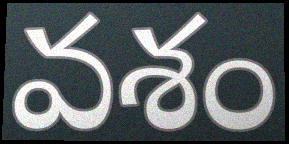
వశం